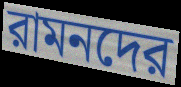
রামনদের